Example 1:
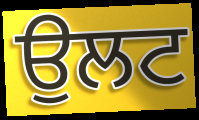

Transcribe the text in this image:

ਉਲਟ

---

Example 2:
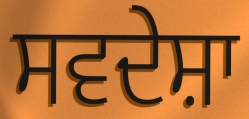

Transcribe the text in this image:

ਸਵਦੇਸ਼ਾ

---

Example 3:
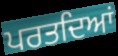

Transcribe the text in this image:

ਪਰਤਦਿਆਂ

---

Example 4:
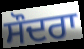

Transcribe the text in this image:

ਸੌਦਰਾ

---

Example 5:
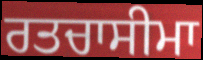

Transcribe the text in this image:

ਰਤਚਾਸੀਮਾ